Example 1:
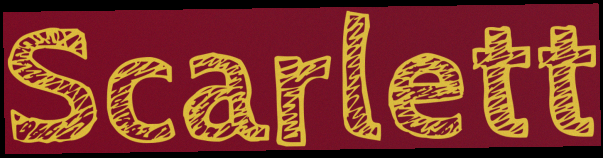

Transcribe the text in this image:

Scarlett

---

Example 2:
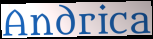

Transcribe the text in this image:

Andrica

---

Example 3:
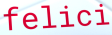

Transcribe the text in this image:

felici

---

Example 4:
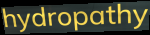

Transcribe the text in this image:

hydropathy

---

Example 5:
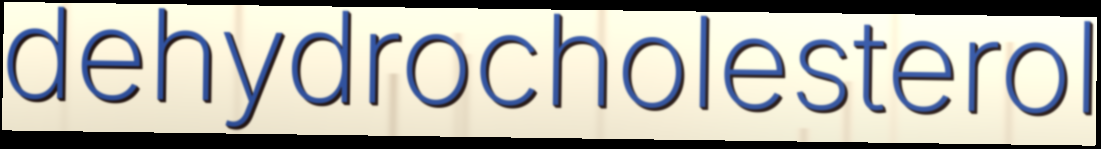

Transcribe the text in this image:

dehydrocholesterol